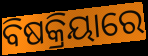
ବିଷକ୍ରିୟାରେ